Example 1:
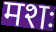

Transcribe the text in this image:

मशः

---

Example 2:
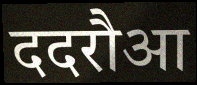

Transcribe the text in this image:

ददरौआ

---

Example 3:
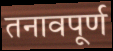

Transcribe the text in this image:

तनावपूर्ण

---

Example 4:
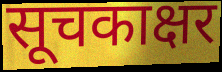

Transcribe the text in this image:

सूचकाक्षर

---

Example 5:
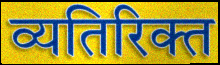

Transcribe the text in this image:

व्यतिरिक्त